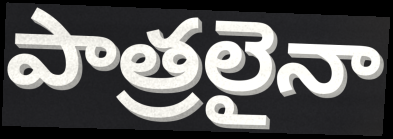
పాత్రలైనా